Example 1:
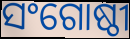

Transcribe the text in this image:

ସଂଗୋଷ୍ଠୀ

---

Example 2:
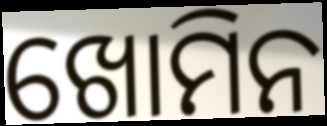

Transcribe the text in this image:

ଖୋମିନ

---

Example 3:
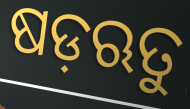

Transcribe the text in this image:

ଷଡ଼ଋତୁ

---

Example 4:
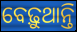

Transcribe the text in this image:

ବେଢ଼ୁଥାନ୍ତି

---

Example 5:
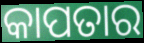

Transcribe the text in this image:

କାପତାର